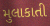
મુલાકાતી